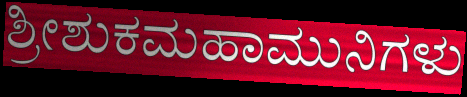
ಶ್ರೀಶುಕಮಹಾಮುನಿಗಳು